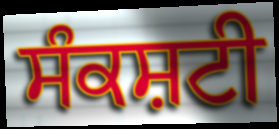
ਸੰਕਸ਼ਟੀ